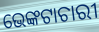
ଭେଙ୍କଟାଚାରୀ